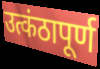
उत्कंठापूर्ण